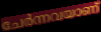
ചേർന്നവയാണ്